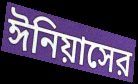
ঈনিয়াসের